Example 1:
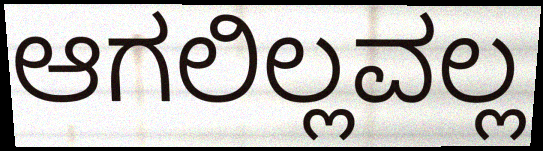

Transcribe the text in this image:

ಆಗಲಿಲ್ಲವಲ್ಲ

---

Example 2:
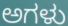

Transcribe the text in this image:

ಅಗಳು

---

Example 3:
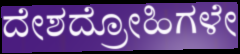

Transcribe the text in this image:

ದೇಶದ್ರೋಹಿಗಳೇ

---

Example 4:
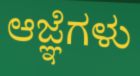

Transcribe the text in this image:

ಆಜ್ಞೆಗಳು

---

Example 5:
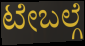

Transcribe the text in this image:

ಟೇಬಲ್ಗೆ